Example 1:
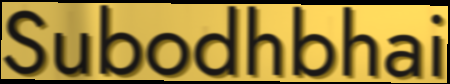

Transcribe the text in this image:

Subodhbhai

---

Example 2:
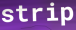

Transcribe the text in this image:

strip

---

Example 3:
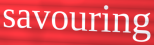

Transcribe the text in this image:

savouring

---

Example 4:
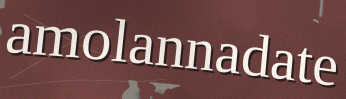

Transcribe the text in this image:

amolannadate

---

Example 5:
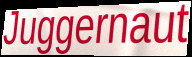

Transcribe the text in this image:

Juggernaut